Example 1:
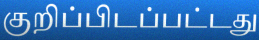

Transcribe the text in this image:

குறிப்பிடப்பட்டது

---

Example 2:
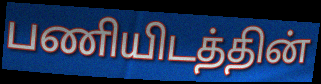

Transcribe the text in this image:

பணியிடத்தின்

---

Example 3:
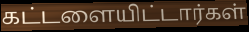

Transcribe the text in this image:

கட்டளையிட்டார்கள்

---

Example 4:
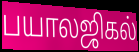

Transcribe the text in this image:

பயாலஜிகல்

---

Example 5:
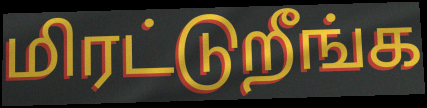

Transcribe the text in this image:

மிரட்டுறீங்க